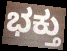
ಭಕ್ತು